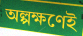
অল্পক্ষণেই